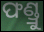
ଫଣ୍ଡ୍ରୁ